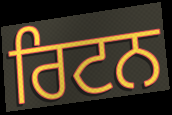
ਰਿਟਨ